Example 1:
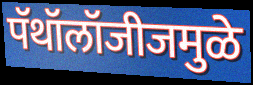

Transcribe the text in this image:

पॅथॉलॉजीजमुळे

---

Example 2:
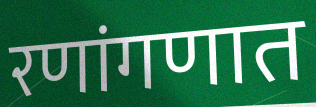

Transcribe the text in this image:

रणांगणात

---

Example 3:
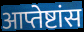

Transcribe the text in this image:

आप्तेष्टांस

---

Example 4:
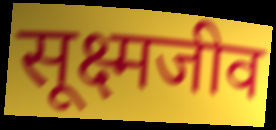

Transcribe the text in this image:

सूक्ष्मजीव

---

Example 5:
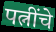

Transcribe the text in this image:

पत्नींचे